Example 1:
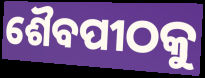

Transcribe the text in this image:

ଶୈବପୀଠକୁ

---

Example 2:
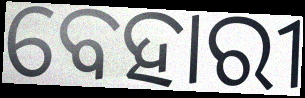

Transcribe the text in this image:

ବେହାରୀ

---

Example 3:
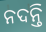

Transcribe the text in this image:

ନଦନ୍ତି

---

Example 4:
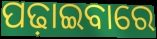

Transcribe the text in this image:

ପଢ଼ାଇବାରେ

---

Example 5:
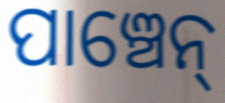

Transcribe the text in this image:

ପାଞ୍ଚେନ୍